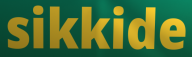
sikkide